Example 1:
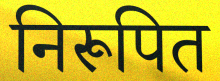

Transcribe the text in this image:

निरूपित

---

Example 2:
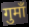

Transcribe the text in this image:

गुमाँ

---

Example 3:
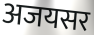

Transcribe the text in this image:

अजयसर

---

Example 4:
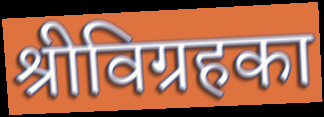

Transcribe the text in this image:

श्रीविग्रहका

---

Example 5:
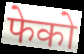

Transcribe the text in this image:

फेको